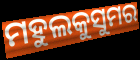
ମହୁଲକୁସୁମର